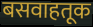
बसवाहतूक